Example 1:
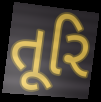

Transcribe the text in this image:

તૂરિ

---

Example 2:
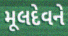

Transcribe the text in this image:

મૂલદેવને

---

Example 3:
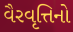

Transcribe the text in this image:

વૈરવૃત્તિનો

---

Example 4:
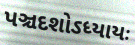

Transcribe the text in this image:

પઞ્ચદશોઽધ્યાયઃ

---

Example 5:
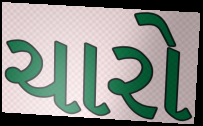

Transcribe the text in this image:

ચારો